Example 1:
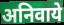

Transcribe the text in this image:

अनिवाये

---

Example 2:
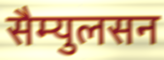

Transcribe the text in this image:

सैम्युलसन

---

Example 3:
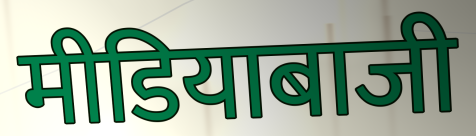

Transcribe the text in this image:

मीडियाबाजी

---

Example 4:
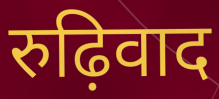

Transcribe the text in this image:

रुढ़िवाद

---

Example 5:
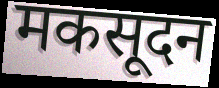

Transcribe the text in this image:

मकसूदन